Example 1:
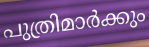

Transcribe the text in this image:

പുത്രിമാർക്കും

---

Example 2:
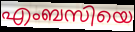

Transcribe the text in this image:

എംബസിയെ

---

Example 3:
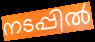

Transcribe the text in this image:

നടപ്പിൽ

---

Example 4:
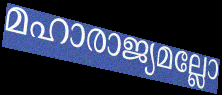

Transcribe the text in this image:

മഹാരാജ്യമല്ലോ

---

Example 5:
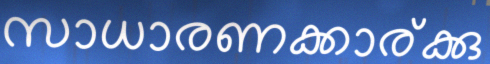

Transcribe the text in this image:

സാധാരണക്കാര്ക്കു